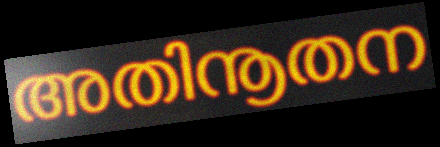
അതിനൂതന